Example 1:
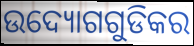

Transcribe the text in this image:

ଉଦ୍ୟୋଗଗୁଡିକର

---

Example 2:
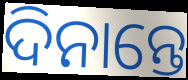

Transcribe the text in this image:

ଦିନାନ୍ତେ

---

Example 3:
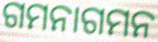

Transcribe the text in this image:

ଗମନାଗମନ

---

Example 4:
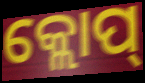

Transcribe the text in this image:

କ୍ଲୋପ୍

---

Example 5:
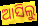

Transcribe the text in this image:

ଆସିଲୁ